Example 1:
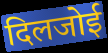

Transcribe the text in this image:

दिलजोई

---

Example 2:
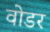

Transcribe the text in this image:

वोडर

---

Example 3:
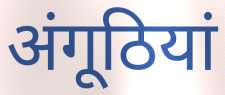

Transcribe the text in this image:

अंगूठियां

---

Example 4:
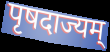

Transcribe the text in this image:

पृषदाज्यम्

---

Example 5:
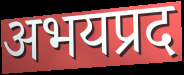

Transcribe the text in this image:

अभयप्रद